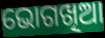
ଭୋଗଖିଆ